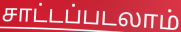
சாட்டப்படலாம்